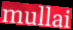
mullai